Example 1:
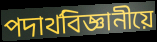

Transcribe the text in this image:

পদাৰ্থবিজ্ঞানীয়ে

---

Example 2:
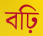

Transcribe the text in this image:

বঢ়ি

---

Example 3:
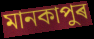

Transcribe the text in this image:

মানকাপুৰ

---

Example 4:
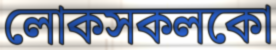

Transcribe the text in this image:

লোকসকলকো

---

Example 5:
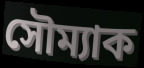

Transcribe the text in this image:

সৌম্যাক